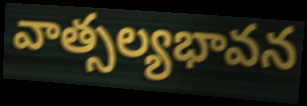
వాత్సల్యభావన